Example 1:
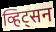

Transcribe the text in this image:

व्हिट्सन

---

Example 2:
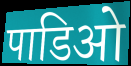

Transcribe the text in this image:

पाडिओ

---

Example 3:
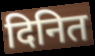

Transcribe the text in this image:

दिनित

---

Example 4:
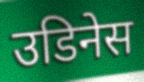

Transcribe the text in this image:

उडिनेस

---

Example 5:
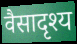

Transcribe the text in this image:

वैसादृश्य